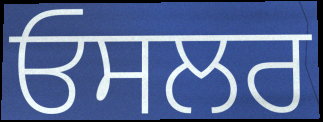
ਓਸਲਰ